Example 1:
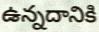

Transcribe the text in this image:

ఉన్నదానికి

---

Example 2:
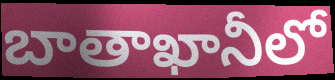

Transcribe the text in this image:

బాతాఖానీలో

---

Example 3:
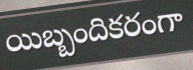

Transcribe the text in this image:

యిబ్బందికరంగా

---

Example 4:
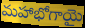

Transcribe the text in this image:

మహాభోగాయై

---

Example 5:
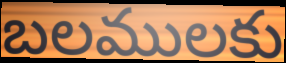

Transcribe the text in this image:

బలములకు